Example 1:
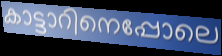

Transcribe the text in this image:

കാട്ടാറിനെപ്പോലെ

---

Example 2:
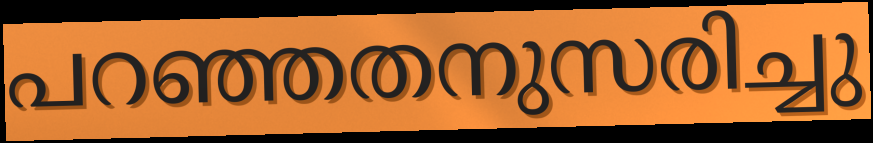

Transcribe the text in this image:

പറഞ്ഞതനുസരിച്ചു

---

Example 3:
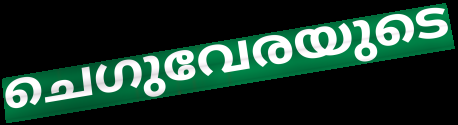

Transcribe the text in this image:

ചെഗുവേരയുടെ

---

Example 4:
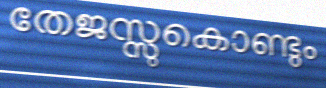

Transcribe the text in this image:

തേജസ്സുകൊണ്ടും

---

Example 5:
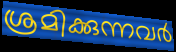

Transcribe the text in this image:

ശ്രമിക്കുന്നവർ